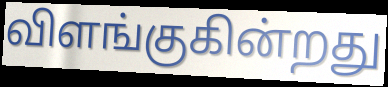
விளங்குகின்றது